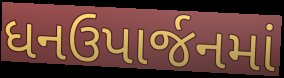
ધનઉપાર્જનમાં